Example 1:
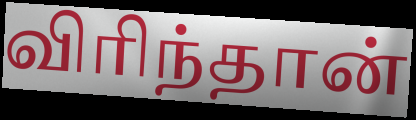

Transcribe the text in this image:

விரிந்தான்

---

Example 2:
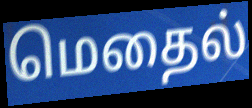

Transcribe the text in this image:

மெதைல்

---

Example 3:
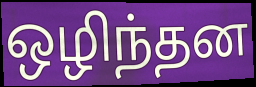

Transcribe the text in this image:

ஒழிந்தன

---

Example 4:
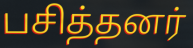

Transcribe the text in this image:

பசித்தனர்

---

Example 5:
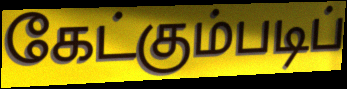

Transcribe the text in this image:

கேட்கும்படிப்